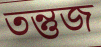
তন্তুজ